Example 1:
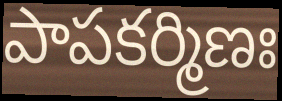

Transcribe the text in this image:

పాపకర్మిణః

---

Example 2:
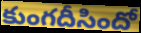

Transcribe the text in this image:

కుంగదీసిందో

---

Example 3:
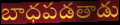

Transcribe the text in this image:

బాధపడతాడు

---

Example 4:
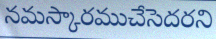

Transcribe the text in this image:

నమస్కారముచేసెదరని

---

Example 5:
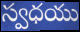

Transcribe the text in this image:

స్వధయు